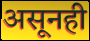
असूनही